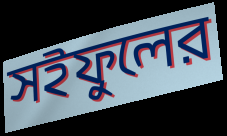
সইফুলের